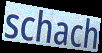
schach